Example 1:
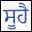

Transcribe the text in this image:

ਸੂਹੈ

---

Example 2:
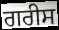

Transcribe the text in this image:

ਗਰੀਸ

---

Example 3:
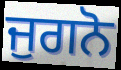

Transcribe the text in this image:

ਜੁਗਨੋ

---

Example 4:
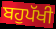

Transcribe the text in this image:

ਬਹੁਪੱਖੀ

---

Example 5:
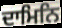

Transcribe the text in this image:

ਦਾਮਿਨਿ